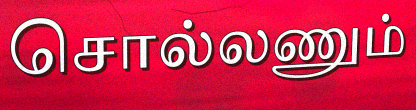
சொல்லணும்